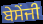
ਬੇਸੇਂਜੀ